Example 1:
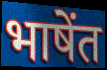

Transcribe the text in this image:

भाषेंत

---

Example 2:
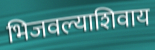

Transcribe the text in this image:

भिजवल्याशिवाय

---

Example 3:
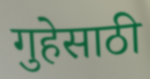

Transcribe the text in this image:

गुहेसाठी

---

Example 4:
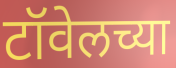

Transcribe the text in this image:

टॉवेलच्या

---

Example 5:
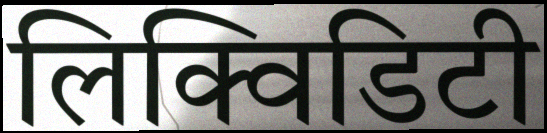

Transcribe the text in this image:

लिक्विडिटी